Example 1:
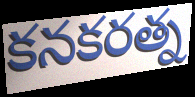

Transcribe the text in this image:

కనకరత్న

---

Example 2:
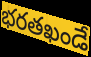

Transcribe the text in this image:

భరతఖండే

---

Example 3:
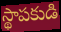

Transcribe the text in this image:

స్థాపకుడి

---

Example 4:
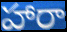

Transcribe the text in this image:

హారా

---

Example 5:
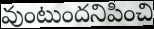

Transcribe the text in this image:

వుంటుందనిపించి